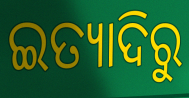
ଇତ୍ୟାଦିରୁ